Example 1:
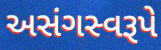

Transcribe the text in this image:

અસંગસ્વરૂપે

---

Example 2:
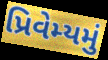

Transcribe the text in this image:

પ્રિવેમ્યમું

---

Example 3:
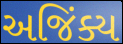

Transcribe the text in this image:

અજિંક્ય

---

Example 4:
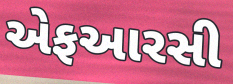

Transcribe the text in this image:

એફઆરસી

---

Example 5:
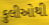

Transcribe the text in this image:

કુલીઓથી